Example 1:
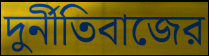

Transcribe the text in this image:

দুর্নীতিবাজের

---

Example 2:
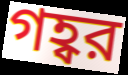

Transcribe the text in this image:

গহ্বর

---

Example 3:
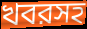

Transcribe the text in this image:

খবরসহ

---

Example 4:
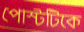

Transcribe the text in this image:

পোস্টটিকে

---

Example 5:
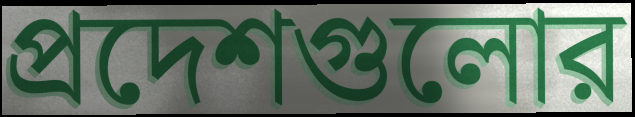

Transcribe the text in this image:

প্রদেশগুলোর